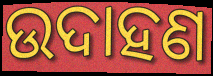
ଉଦାହଣ